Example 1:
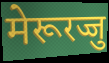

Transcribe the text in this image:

मेरूरज्जु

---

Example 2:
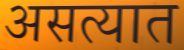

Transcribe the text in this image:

असत्यात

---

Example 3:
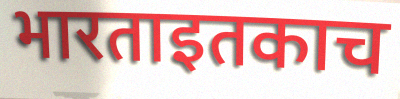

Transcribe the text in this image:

भारताइतकाच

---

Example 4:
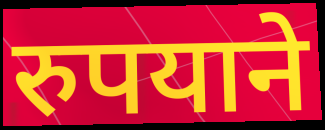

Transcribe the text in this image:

रुपयाने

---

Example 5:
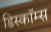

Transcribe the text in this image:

डिस्कॉम्स